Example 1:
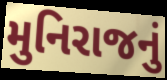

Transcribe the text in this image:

મુનિરાજનું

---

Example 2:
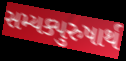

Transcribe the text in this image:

સમ્યક્પુરુષાર્થ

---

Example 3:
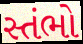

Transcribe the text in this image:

સ્તંભો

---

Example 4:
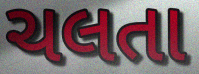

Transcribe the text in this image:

ચલતા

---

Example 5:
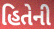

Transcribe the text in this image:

હિતેની